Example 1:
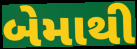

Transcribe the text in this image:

બેમાથી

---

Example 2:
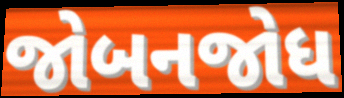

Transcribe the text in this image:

જોબનજોધ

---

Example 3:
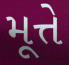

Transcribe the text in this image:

મૂત્તે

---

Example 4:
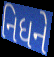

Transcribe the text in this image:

નિધને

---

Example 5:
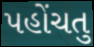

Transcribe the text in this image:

પહોંચતુ